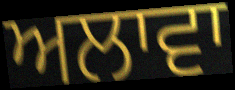
ਅਲਾਵਾ